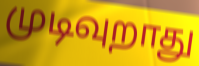
முடிவுறாது